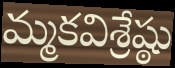
మ్మకవిశ్రేష్ఠు